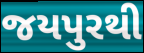
જયપુરથી